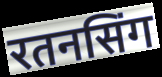
रतनसिंग